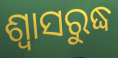
ଶ୍ୱାସରୁଦ୍ଧ